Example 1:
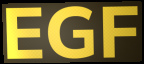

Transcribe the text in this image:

EGF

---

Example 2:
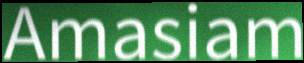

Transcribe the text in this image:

Amasiam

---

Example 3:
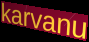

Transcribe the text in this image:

karvanu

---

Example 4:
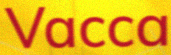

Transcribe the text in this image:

Vacca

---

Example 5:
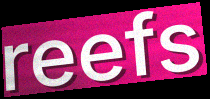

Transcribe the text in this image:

reefs